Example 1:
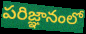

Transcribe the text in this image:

పరిజ్ఞానంలో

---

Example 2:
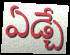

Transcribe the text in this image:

ఏడ్చే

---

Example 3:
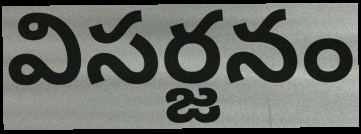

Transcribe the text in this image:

విసర్జనం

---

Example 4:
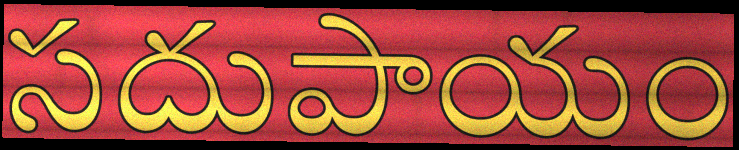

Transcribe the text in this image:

సదుపాయం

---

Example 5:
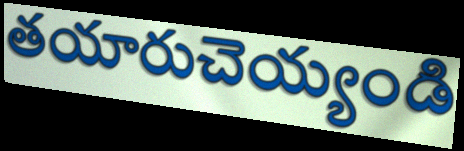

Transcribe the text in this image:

తయారుచెయ్యండి